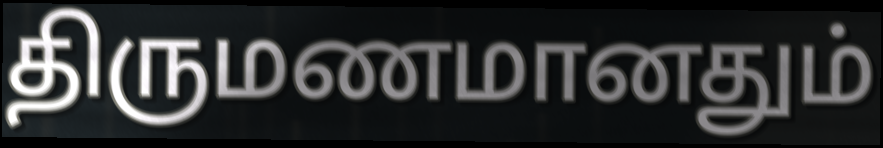
திருமணமானதும்